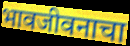
भावजीवनाचा